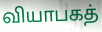
வியாபகத்